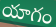
యాగం